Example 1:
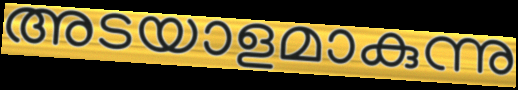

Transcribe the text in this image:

അടയാളമാകുന്നു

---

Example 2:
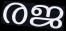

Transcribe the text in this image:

രജ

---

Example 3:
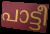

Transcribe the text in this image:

പാട്ടീ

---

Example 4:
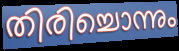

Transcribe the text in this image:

തിരിച്ചൊന്നും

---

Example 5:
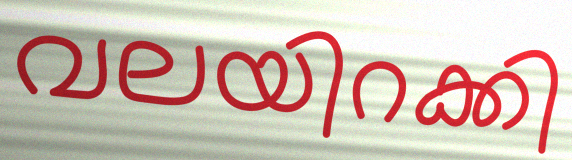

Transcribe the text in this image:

വലയിറക്കി